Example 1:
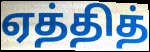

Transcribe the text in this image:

ஏத்தித்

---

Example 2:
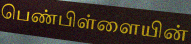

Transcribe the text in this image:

பெண்பிள்ளையின்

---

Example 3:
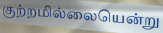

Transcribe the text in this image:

குற்றமில்லையென்று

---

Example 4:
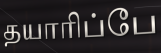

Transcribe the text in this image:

தயாரிப்பே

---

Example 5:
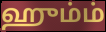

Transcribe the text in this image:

ஹும்ம்